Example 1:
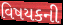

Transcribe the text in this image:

વિષયકની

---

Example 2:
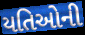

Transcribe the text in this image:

યતિઓની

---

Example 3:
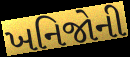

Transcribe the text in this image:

ખનિજોની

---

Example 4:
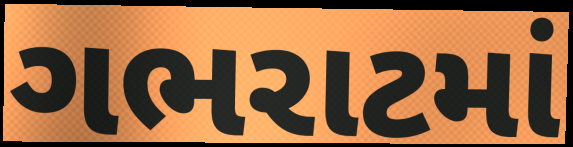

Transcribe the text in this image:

ગભરાટમાં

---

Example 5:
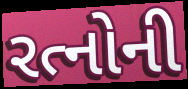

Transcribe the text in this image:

રત્નોની